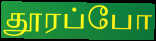
தூரப்போ